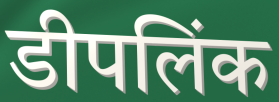
डीपलिंक